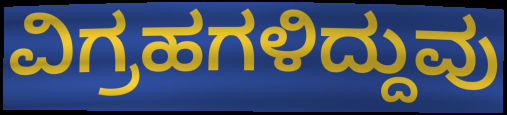
ವಿಗ್ರಹಗಳಿದ್ದುವು